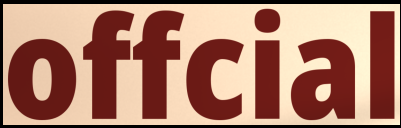
offcial